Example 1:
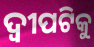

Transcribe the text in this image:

ଦ୍ୱୀପଟିକୁ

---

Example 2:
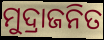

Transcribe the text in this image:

ମୁଦ୍ରାଜନିତ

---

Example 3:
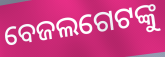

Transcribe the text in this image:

ବେଜଲଗେଟଙ୍କୁ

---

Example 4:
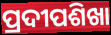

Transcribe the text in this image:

ପ୍ରଦୀପଶିଖା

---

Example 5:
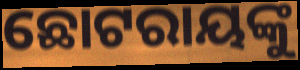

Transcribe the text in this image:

ଛୋଟରାୟଙ୍କୁ